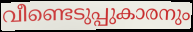
വീണ്ടെടുപ്പുകാരനും